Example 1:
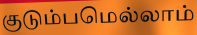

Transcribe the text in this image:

குடும்பமெல்லாம்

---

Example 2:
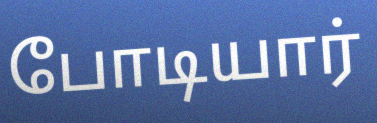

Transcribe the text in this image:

போடியார்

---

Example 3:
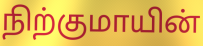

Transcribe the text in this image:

நிற்குமாயின்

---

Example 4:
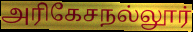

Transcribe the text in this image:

அரிகேசநல்லூர்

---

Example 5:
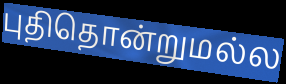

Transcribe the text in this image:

புதிதொன்றுமல்ல